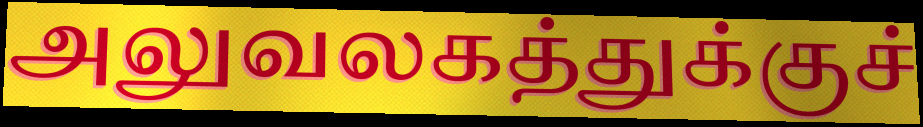
அலுவலகத்துக்குச்